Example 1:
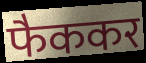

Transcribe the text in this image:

फैककर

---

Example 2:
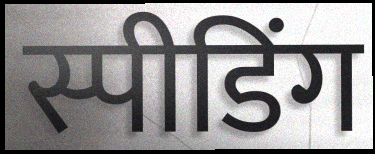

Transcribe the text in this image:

स्‍पीडिंग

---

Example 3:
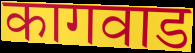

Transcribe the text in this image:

कागवाड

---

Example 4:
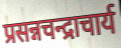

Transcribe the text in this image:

प्रसन्नचन्द्राचार्य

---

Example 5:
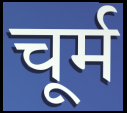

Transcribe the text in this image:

चूर्म